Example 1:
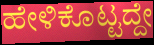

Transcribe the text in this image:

ಹೇಳಿಕೊಟ್ಟದ್ದೇ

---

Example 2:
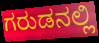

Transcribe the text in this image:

ಗರುಡನಲ್ಲಿ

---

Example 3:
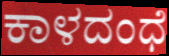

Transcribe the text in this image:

ಕಾಳದಂಧೆ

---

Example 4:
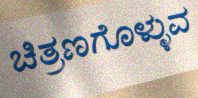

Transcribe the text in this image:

ಚಿತ್ರಣಗೊಳ್ಳುವ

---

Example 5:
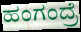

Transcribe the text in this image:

ಹಂಗಂದ್ರೆ